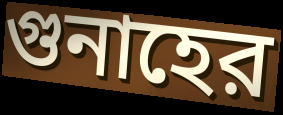
গুনাহের